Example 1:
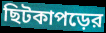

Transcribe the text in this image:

ছিটকাপড়ের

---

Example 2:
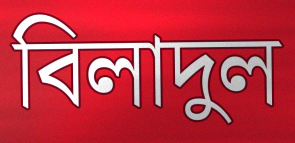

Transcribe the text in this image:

বিলাদুল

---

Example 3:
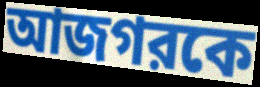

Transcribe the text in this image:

আজগরকে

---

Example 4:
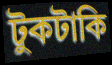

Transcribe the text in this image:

টুকটাকি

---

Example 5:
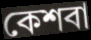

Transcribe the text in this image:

কেশবা